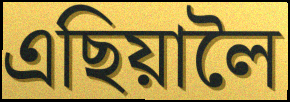
এছিয়ালৈ